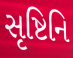
સૃષ્ટિનિ